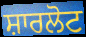
ਸ਼ਾਰਲੋਟ